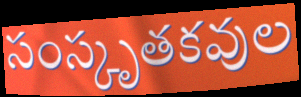
సంస్కృతకవుల